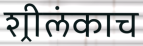
श्रीलंकाच